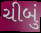
ચીબું